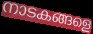
നാടകങ്ങളെ